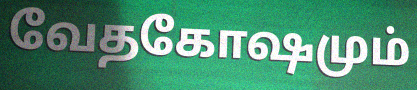
வேதகோஷமும்